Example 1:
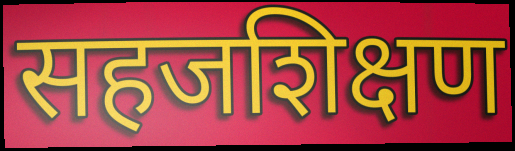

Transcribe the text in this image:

सहजशिक्षण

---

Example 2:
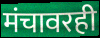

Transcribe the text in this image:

मंचावरही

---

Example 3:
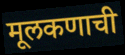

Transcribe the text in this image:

मूलकणाची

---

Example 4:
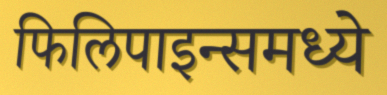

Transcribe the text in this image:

फिलिपाइन्समध्ये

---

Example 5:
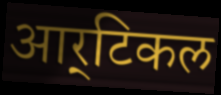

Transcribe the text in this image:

आर्टिकल